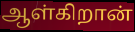
ஆள்கிறான்